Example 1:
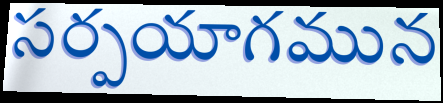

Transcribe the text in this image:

సర్పయాగమున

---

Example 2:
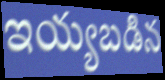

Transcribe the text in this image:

ఇయ్యబడిన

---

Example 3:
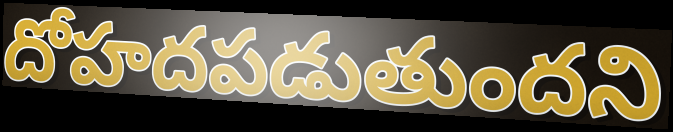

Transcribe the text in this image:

దోహదపడుతుందని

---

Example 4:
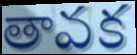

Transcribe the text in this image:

తావక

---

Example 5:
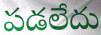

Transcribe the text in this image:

పడలేదు